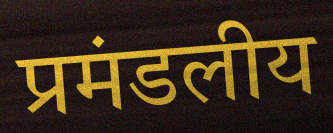
प्रमंडलीय